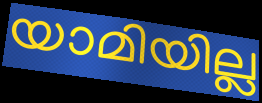
യാമിയില്ല